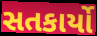
સતકાર્યો